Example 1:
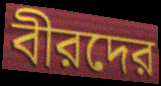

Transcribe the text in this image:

বীরদের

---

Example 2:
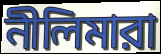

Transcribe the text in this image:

নীলিমারা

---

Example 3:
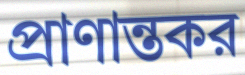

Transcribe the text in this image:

প্রাণান্তকর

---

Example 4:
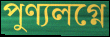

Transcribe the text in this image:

পুণ্যলগ্নে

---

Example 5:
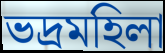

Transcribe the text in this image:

ভদ্রমহিলা